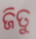
ଜିତୁ